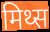
मिथ्स